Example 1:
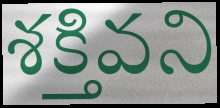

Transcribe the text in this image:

శక్తివని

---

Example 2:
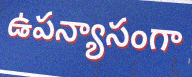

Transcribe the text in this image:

ఉపన్యాసంగా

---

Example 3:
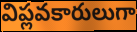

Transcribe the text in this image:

విప్లవకారులుగా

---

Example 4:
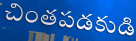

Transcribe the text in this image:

చింతపడకుడి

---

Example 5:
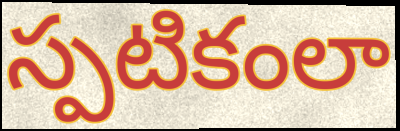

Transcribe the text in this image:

స్పటికంలా